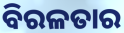
ବିରଳତାର